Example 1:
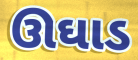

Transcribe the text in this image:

ઊઘાડ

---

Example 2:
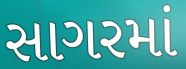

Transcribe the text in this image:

સાગરમાં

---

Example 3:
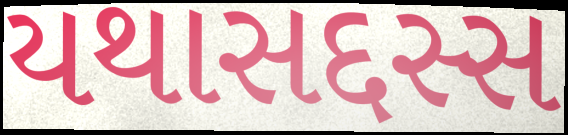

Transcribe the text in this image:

યથાસદ્દસ્સ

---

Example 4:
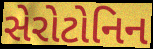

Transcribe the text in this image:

સેરોટોનિન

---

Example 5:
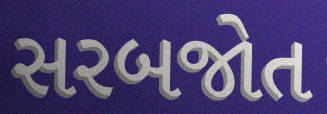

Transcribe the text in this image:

સરબજોત